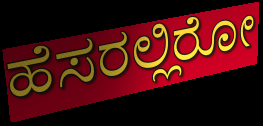
ಹೆಸರಲ್ಲಿರೋ